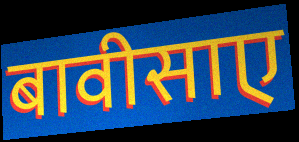
बावीसाए